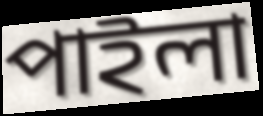
পাইলা